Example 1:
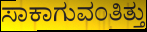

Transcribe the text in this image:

ಸಾಕಾಗುವಂತಿತ್ತು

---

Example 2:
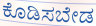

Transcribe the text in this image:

ಕೊಡಿಸಬೇಡ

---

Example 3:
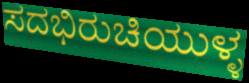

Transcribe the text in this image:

ಸದಭಿರುಚಿಯುಳ್ಳ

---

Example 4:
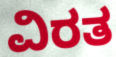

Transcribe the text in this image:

ವಿರತ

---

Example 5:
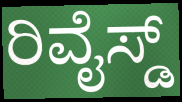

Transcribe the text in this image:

ರಿವೈಸ್ಡ್